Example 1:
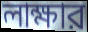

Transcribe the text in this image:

লাক্ষার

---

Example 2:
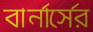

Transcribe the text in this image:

বার্নার্সের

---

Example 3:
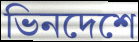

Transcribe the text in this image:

ভিনদেশে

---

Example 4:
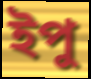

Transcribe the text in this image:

ইপু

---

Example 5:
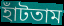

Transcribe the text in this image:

হাঁটতাম